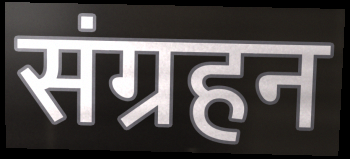
संग्रहन